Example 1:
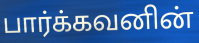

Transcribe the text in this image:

பார்க்கவனின்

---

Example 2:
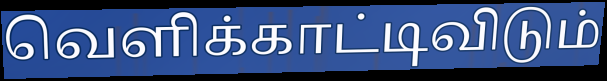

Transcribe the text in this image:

வெளிக்காட்டிவிடும்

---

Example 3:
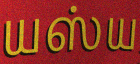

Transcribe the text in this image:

யஸ்ய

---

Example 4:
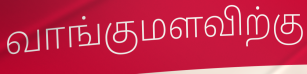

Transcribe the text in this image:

வாங்குமளவிற்கு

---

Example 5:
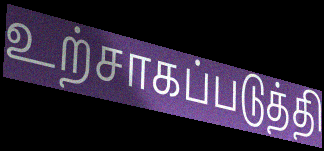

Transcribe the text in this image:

உற்சாகப்படுத்தி